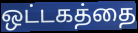
ஒட்டகத்தை